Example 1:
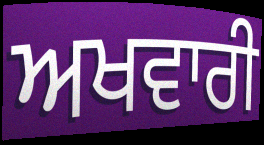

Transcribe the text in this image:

ਅਖਵਾਰੀ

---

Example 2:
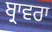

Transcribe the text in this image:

ਬ੍ਰਾਵਰਾ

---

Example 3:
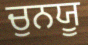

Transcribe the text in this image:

ਚੁਨਯੂ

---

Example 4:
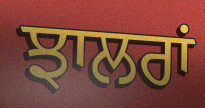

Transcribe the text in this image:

ਝਾਲਰਾਂ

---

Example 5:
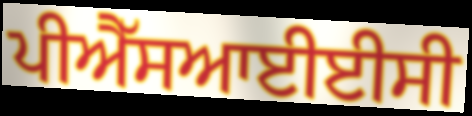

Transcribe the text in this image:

ਪੀਐੱਸਆਈਈਸੀ